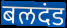
बलदंड